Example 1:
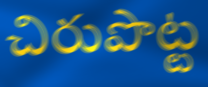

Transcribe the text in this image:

చిరుపొట్ట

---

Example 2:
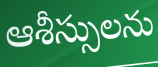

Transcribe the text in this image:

ఆశీస్సులను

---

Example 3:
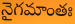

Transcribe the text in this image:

నైగమాంతః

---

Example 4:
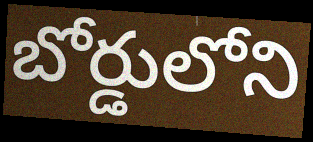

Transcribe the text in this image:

బోర్డులోని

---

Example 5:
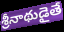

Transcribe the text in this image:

శ్రీనాథుడైతే